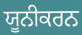
ਯੂਨੀਕਰਨ